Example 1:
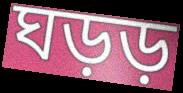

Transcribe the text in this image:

ঘড়ড়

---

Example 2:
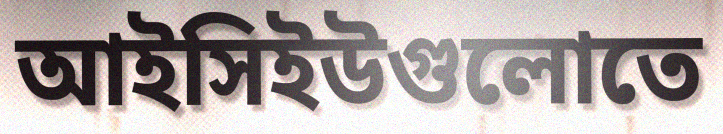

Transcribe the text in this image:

আইসিইউগুলোতে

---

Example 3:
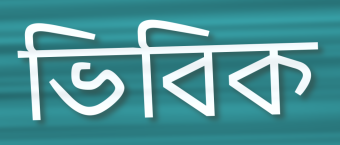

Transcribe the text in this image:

ভিবিক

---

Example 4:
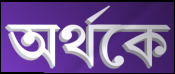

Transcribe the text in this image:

অর্থকে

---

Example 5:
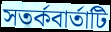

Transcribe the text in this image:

সতর্কবার্তাটি